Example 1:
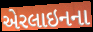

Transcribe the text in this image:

એરલાઇનના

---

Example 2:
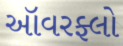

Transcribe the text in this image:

ઑવરફ્લો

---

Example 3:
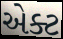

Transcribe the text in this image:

એક્ટ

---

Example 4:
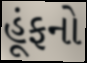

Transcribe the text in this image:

હૂંફનો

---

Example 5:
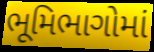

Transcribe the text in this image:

ભૂમિભાગોમાં